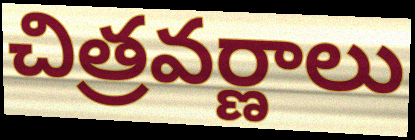
చిత్రవర్ణాలు